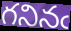
గనినఁ